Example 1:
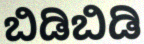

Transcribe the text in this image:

ಬಿಡಿಬಿಡಿ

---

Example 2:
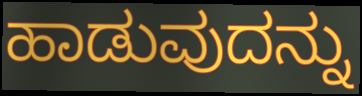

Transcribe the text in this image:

ಹಾಡುವುದನ್ನು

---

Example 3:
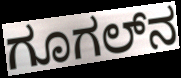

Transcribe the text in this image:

ಗೂಗಲ್‌ನ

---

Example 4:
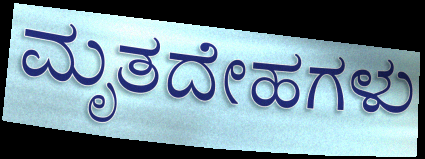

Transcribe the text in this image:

ಮೃತದೇಹಗಳು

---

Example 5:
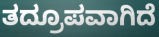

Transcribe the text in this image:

ತದ್ರೂಪವಾಗಿದೆ